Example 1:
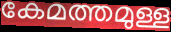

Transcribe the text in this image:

കേമത്തമുള്ള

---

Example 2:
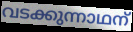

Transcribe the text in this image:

വടക്കുന്നാഥന്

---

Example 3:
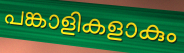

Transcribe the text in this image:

പങ്കാളികളാകും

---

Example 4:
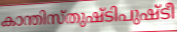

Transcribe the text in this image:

കാന്തിസ്തുഷ്ടിപുഷ്ടീ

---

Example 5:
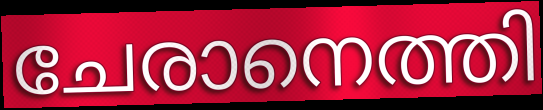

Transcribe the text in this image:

ചേരാനെത്തി